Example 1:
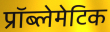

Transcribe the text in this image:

प्रॉब्लेमेटिक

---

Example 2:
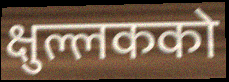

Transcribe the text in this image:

क्षुल्लकको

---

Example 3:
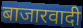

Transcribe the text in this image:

बाजारवादी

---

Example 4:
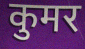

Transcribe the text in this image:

कुमर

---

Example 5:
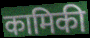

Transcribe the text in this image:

कामिकी